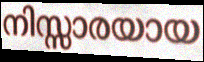
നിസ്സാരയായ